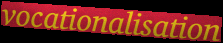
vocationalisation